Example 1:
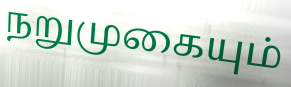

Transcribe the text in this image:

நறுமுகையும்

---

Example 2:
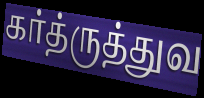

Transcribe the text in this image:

கர்த்ருத்துவ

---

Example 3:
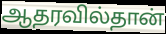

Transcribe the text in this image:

ஆதரவில்தான்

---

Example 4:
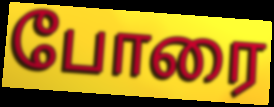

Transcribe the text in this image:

போரை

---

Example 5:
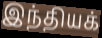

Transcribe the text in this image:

இந்தியக்